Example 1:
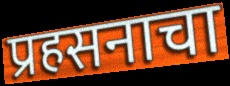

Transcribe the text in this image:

प्रहसनाचा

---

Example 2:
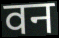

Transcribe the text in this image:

वन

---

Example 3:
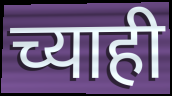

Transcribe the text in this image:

च्याही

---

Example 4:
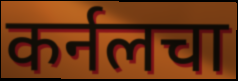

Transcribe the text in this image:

कर्नलचा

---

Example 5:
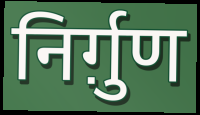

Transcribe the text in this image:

निर्ग़ुण